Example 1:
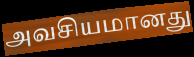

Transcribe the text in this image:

அவசியமானது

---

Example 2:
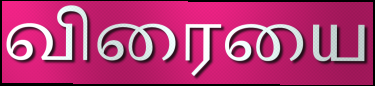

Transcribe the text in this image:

விரையை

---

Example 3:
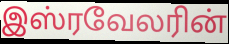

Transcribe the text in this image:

இஸ்ரவேலரின்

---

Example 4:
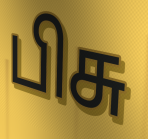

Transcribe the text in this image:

பிசு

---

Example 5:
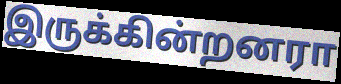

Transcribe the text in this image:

இருக்கின்றனரா